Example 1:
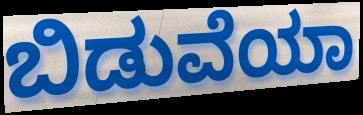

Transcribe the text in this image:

ಬಿಡುವೆಯಾ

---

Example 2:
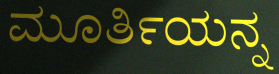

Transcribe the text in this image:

ಮೂರ್ತಿಯನ್ನ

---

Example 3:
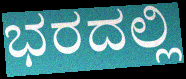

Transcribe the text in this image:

ಭರದಲ್ಲಿ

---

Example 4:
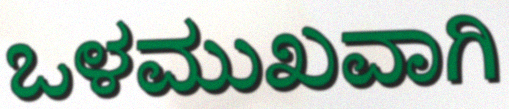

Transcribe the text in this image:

ಒಳಮುಖವಾಗಿ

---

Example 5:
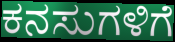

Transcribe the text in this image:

ಕನಸುಗಳಿಗೆ